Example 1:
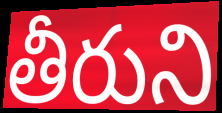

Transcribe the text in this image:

తీరుని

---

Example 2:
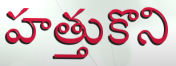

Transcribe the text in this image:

హత్తుకొని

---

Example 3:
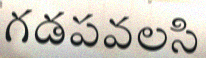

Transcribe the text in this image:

గడపవలసి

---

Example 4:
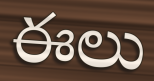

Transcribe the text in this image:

ఈలు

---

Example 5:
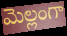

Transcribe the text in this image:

మెల్లంగా